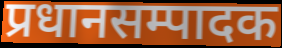
प्रधानसम्पादक